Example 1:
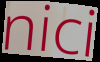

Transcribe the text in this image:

nici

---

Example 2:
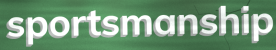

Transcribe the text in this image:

sportsmanship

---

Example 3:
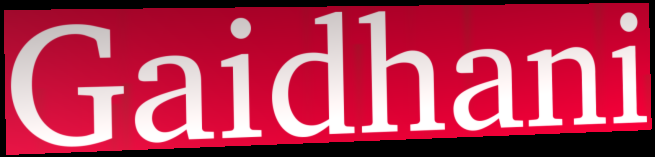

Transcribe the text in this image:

Gaidhani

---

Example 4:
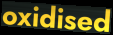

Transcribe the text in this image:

oxidised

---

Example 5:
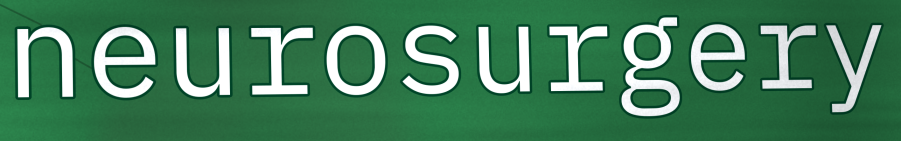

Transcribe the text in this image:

neurosurgery